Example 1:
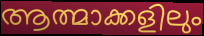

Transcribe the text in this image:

ആത്മാക്കളിലും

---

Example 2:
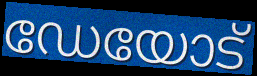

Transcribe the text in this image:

ഡേയോട്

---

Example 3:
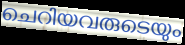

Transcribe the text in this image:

ചെറിയവരുടെയും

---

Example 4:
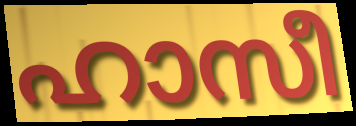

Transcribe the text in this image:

ഹാസീ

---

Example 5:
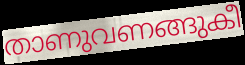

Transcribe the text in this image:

താണുവണങ്ങുകീ